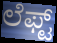
ಲೆಫ್ಟ್